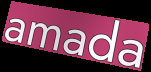
amada